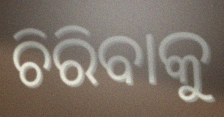
ଚିରିବାକୁ